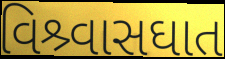
વિશ્ર્વાસઘાત